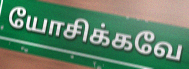
யோசிக்கவே